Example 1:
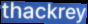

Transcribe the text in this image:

thackrey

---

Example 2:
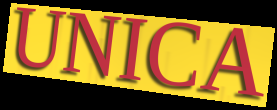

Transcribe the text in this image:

UNICA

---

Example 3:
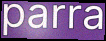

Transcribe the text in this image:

parra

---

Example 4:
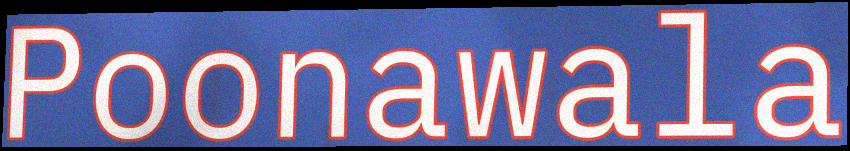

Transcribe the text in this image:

Poonawala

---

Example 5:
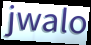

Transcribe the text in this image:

jwalo